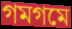
গমগমে